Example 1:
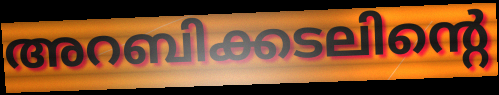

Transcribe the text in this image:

അറബിക്കടലിന്റെ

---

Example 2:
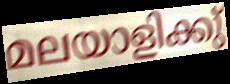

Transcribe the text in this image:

മലയാളിക്കു്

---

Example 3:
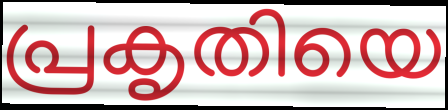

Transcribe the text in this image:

പ്രകൃതിയെ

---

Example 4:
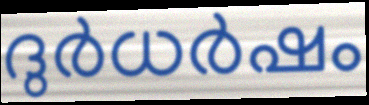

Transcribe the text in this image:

ദുർധർഷം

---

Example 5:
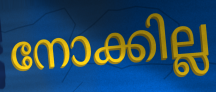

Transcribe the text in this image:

നോക്കില്ല